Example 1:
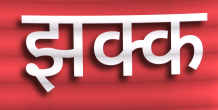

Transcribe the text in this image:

झक्क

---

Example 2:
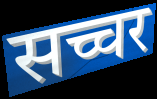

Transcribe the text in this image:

सच्चर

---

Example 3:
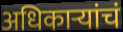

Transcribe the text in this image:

अधिकाऱ्यांचं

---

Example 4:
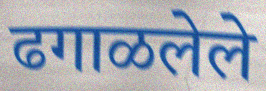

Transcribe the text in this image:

ढगाळलेले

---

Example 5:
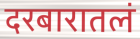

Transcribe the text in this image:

दरबारातलं